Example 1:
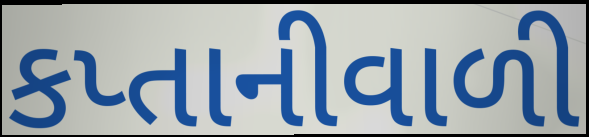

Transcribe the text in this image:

કપ્તાનીવાળી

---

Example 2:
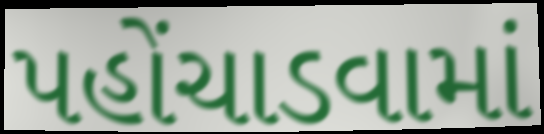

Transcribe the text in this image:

પહોંચાડવામાં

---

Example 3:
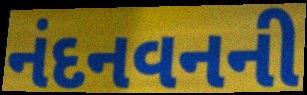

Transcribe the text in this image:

નંદનવનની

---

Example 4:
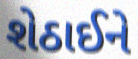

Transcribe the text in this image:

શેઠાઈને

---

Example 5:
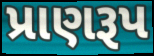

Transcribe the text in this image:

પ્રાણરૂપ